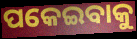
ପକେଇବାକୁ